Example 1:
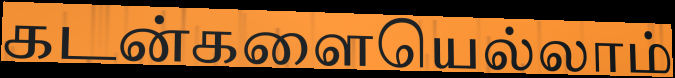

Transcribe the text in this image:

கடன்களையெல்லாம்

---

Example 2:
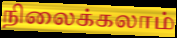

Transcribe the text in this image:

நிலைக்கலாம்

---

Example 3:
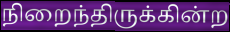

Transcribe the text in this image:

நிறைந்திருக்கின்ற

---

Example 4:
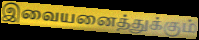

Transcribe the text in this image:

இவையனைத்துக்கும்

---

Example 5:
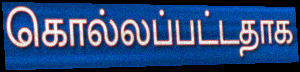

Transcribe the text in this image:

கொல்லப்பட்டதாக